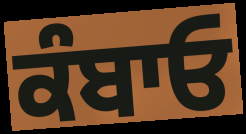
ਕੰਬਾਓ